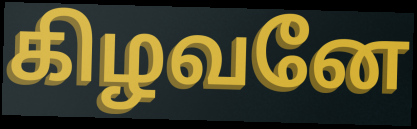
கிழவனே